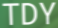
TDY